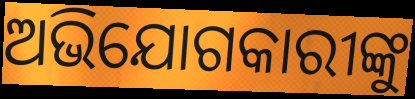
ଅଭିଯୋଗକାରୀଙ୍କୁ